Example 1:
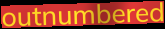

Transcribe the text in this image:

outnumbered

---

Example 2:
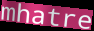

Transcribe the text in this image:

mhatre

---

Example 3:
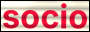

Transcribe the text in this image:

socio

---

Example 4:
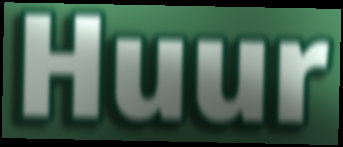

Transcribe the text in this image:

Huur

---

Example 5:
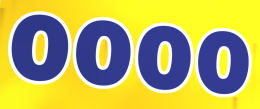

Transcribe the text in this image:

oooo